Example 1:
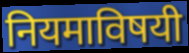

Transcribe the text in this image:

नियमाविषयी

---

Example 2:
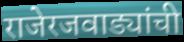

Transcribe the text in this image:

राजेरजवाड्यांची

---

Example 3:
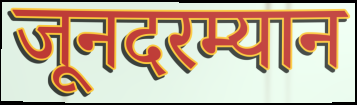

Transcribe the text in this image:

जूनदरम्यान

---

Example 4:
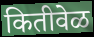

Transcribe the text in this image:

कितीवेळ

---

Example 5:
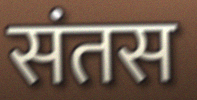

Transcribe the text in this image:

संतस